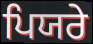
ਪਿਯਰੇ